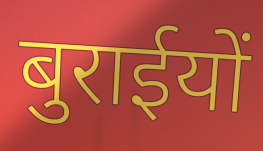
बुराईयों